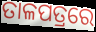
ତାଳପତ୍ରରେ